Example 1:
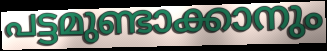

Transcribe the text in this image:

പട്ടമുണ്ടാക്കാനും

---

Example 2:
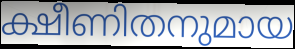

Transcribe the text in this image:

ക്ഷീണിതനുമായ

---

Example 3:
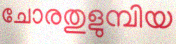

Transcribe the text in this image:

ചോരതുളുമ്പിയ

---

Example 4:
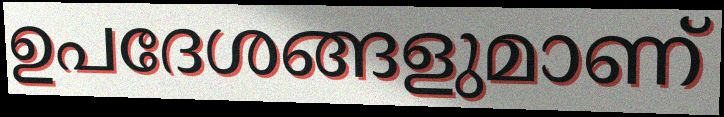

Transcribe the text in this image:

ഉപദേശങ്ങളുമാണ്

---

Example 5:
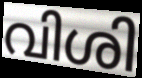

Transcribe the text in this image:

വിശി